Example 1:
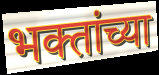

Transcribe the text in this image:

भक्तांच्या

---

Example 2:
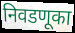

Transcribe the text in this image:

निवडणूका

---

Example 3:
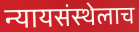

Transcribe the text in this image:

न्यायसंस्थेलाच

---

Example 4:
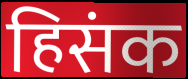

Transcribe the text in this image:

हिसंक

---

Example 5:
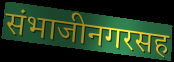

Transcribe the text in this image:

संभाजीनगरसह